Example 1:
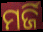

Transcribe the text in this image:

ମର୍ଜି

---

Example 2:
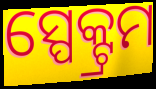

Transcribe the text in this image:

ସ୍ପେକ୍ଟ୍ରମ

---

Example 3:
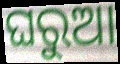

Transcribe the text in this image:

ଘରୁଆ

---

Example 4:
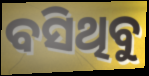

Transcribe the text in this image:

ବସିଥିବୁ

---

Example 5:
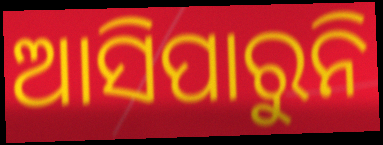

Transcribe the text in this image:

ଆସିପାରୁନି